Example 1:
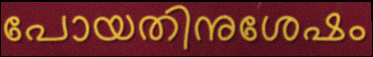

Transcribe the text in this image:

പോയതിനുശേഷം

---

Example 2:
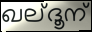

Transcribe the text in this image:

ഖല്ദൂന്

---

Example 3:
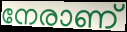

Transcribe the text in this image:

നേരാണ്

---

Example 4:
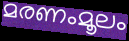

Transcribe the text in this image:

മരണംമൂലം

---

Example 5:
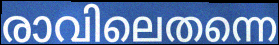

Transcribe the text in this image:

രാവിലെതന്നെ